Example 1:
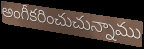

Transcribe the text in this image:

అంగీకరించుచున్నాము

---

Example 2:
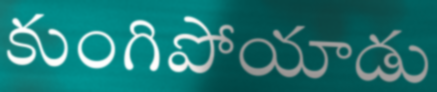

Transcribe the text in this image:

కుంగిపోయాడు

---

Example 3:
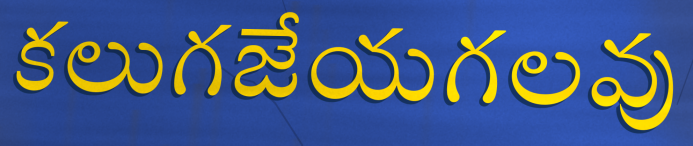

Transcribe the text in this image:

కలుగజేయగలవు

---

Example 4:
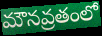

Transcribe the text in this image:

మౌనవ్రతంలో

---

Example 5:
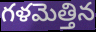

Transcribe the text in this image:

గళమెత్తిన